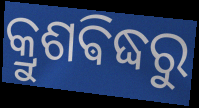
କ୍ରୁଶଵିଦ୍ଧରୁ